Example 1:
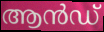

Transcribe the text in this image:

ആൻഡ്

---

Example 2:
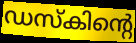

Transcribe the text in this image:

ഡസ്കിന്റെ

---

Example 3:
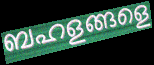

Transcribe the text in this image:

ബഹളങ്ങളെ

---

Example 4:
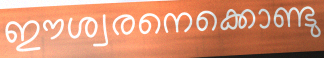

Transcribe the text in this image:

ഈശ്വരനെക്കൊണ്ടു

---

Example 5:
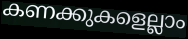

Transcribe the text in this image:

കണക്കുകളെല്ലാം